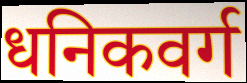
धनिकवर्ग